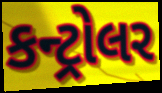
કન્ટ્રોલર